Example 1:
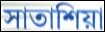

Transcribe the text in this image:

সাতাশিয়া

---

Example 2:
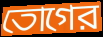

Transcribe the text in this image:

তোগের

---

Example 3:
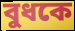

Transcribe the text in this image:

বুধকে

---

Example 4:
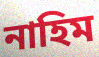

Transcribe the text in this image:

নাহিম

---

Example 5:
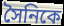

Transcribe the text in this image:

সৈনিকে